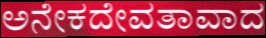
ಅನೇಕದೇವತಾವಾದ